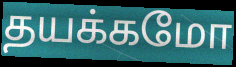
தயக்கமோ